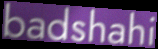
badshahi